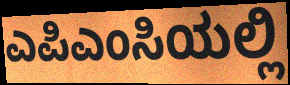
ಎಪಿಎಂಸಿಯಲ್ಲಿ